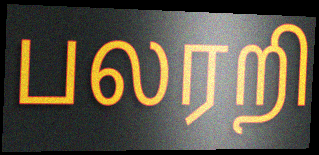
பலரறி